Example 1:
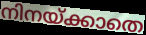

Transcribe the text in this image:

നിനയ്ക്കാതെ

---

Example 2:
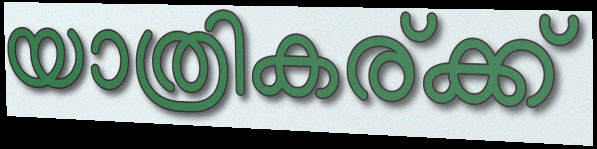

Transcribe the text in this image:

യാത്രികര്ക്ക്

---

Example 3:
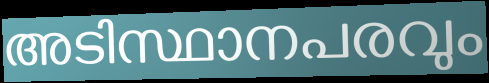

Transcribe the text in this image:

അടിസ്ഥാനപരവും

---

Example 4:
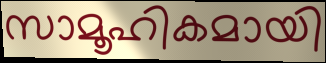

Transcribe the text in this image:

സാമൂഹികമായി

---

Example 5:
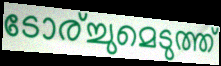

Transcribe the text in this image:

ടോര്ച്ചുമെടുത്ത്